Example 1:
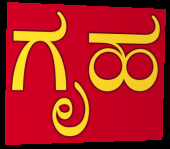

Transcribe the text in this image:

ಗೃಹ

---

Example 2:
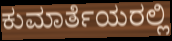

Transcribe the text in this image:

ಕುಮಾರ್ತೆಯರಲ್ಲಿ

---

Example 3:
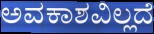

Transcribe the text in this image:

ಅವಕಾಶವಿಲ್ಲದೆ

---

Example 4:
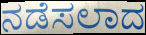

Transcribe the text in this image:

ನಡೆಸಲಾದ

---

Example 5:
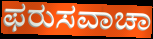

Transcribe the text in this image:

ಫರುಸವಾಚಾ